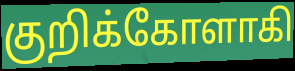
குறிக்கோளாகி